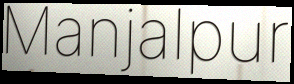
Manjalpur